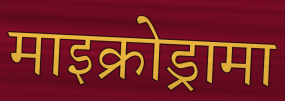
माइक्रोड्रामा